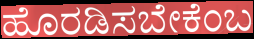
ಹೊರಡಿಸಬೇಕೆಂಬ